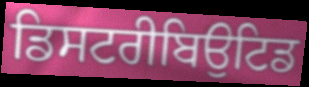
ਡਿਸਟਰੀਬਿਉਟਿਡ